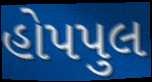
હોપપુલ